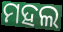
ମହଲ